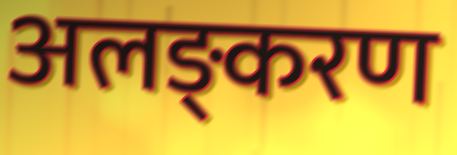
अलङ्करण